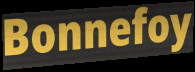
Bonnefoy